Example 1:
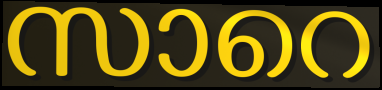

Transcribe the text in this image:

സാറെ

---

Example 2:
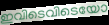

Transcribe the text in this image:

ഇവിടെവിടെയോ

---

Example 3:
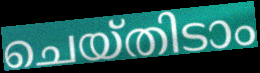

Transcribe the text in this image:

ചെയ്തിടാം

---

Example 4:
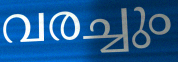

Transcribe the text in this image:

വരച്ചും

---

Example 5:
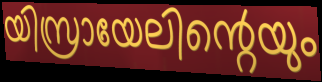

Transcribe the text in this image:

യിസ്രായേലിന്റെയും